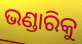
ଭଣ୍ଡାରିକୁ